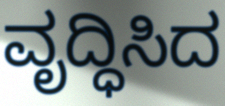
ವೃದ್ಧಿಸಿದ